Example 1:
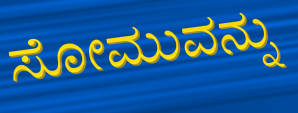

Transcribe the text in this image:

ಸೋಮುವನ್ನು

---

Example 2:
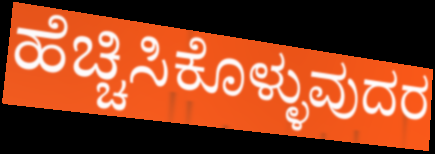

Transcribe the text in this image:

ಹೆಚ್ಚಿಸಿಕೊಳ್ಳುವುದರ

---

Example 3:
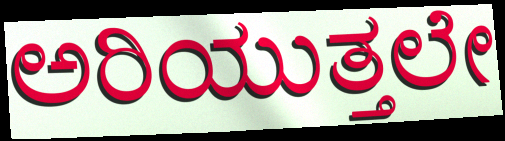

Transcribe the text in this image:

ಅರಿಯುತ್ತಲೇ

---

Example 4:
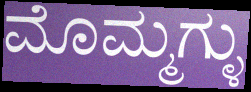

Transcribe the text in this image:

ಮೊಮ್ಮಗ್ಳು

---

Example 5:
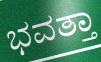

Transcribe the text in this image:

ಭವತ್ತಾ